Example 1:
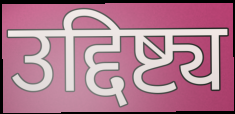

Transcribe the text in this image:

उद्दिष्ट्य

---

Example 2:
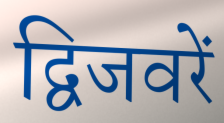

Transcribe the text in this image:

द्विजवरें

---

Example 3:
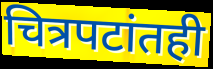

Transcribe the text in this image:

चित्रपटांतही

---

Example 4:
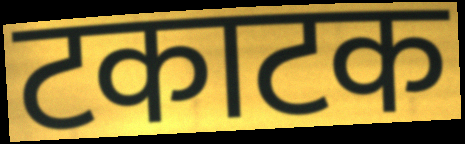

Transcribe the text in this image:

टकाटक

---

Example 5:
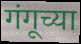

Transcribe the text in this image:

गंगूच्या